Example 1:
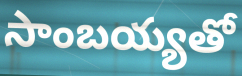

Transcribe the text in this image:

సాంబయ్యతో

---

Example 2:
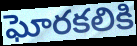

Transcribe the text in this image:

ఘోరకలికి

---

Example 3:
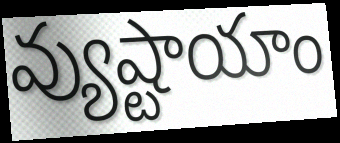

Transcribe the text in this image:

వ్యుష్టాయాం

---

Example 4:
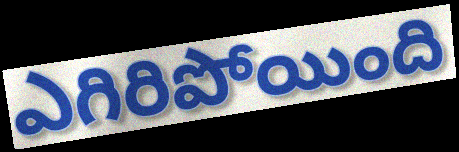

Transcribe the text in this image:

ఎగిరిపోయింది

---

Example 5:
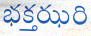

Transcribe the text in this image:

భక్తఝరి